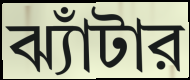
ঝ্যাঁটার